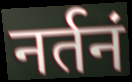
नर्तनं